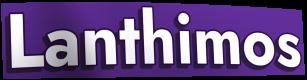
Lanthimos